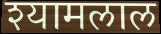
श्यामलाल